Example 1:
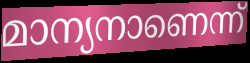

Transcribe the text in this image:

മാന്യനാണെന്ന്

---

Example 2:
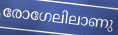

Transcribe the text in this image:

രോഗേലിലാണു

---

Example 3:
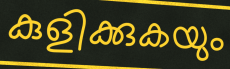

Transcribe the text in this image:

കുളിക്കുകയും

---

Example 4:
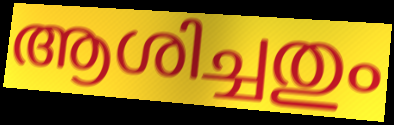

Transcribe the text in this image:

ആശിച്ചതും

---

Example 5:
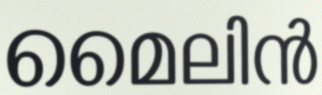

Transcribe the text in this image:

മൈലിൻ